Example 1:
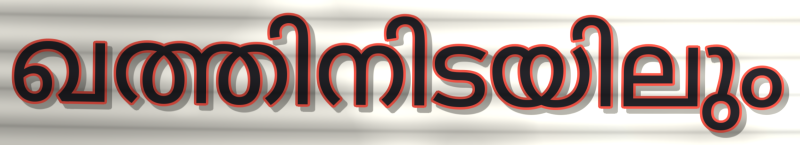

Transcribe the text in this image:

ഖത്തിനിടയിലും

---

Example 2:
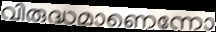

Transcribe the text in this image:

വിരുദ്ധമാണെന്നോ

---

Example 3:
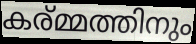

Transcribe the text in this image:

കര്മ്മത്തിനും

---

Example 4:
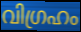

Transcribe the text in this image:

വിഗ്രഹം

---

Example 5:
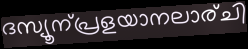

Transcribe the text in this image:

ദസ്യൂന്പ്രളയാനലാര്ചി